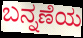
ಬನ್ನಣೆಯ